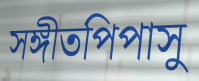
সঙ্গীতপিপাসু